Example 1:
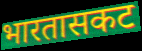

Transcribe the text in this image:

भारतासकट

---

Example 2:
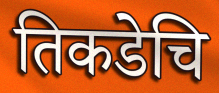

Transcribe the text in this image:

तिकडेचि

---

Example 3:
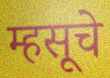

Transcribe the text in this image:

म्हसूचे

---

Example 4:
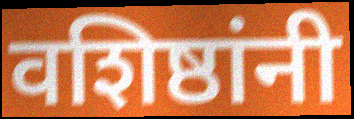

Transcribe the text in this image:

वशिष्ठांनी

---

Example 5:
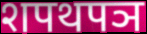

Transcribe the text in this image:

शपथपञ